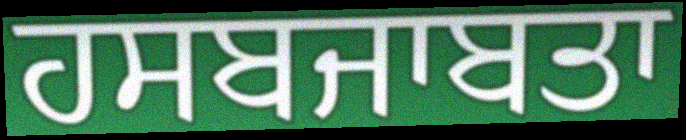
ਹਸਬਜਾਬਤਾ